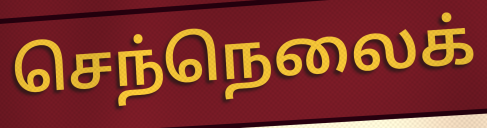
செந்நெலைக்